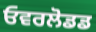
ਓਵਰਲੋਡਡ